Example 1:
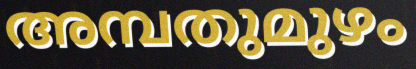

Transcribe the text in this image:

അമ്പതുമുഴം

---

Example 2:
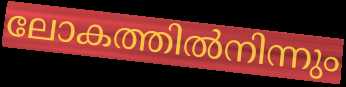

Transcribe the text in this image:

ലോകത്തിൽനിന്നും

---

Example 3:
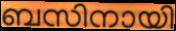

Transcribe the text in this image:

ബസിനായി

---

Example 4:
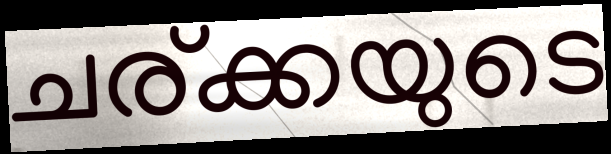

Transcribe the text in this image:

ചര്ക്കയുടെ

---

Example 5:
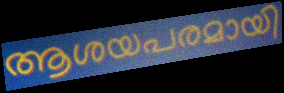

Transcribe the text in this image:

ആശയപരമായി